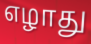
எழாது